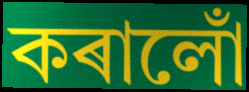
কৰালোঁ